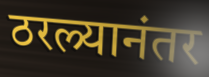
ठरल्यानंतर